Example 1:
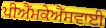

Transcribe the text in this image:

ਪੀਐੱਮਕੇਐੱਸਵਾਈ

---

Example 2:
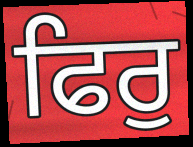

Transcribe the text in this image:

ਫਿਰੁ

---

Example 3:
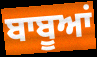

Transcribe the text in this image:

ਬਾਬੂਆਂ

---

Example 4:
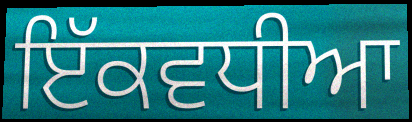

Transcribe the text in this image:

ਇੱਕਵਧੀਆ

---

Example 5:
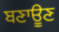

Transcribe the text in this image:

ਬਣਾਊਣ